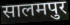
सालमपुर